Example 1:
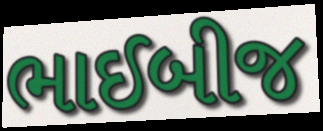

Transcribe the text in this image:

ભાઈબીજ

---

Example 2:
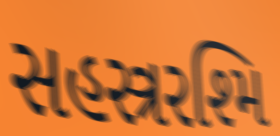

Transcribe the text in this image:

સહસ્ત્રરશ્મિ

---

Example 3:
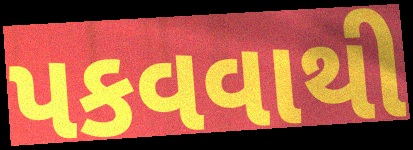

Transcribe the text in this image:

પકવવાથી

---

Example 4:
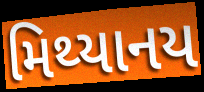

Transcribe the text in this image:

મિથ્યાનય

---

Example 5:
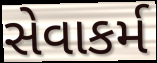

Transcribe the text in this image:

સેવાકર્મ